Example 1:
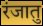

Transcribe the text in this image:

रंजातु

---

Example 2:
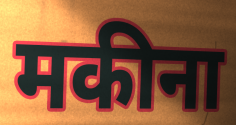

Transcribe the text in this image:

मकीना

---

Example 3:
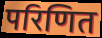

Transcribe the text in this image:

परिणित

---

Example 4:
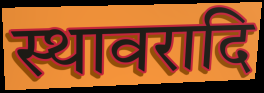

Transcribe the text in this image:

स्थावरादि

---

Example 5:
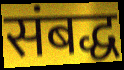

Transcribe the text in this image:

संबद्ध